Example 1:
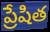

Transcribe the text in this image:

ప్రేషిత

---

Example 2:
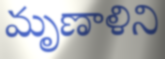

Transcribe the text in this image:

మృణాళిని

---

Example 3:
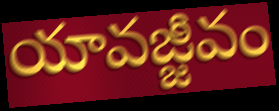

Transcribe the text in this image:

యావజ్జీవం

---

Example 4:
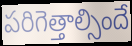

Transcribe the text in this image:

పరిగెత్తాల్సిందే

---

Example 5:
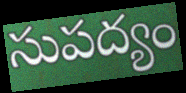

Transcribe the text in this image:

సుపద్యం